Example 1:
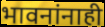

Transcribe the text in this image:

भावनांनाही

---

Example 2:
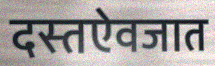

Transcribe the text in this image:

दस्तऐवजात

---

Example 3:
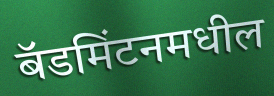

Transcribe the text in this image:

बॅडमिंटनमधील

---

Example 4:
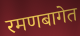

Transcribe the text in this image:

रमणबागेत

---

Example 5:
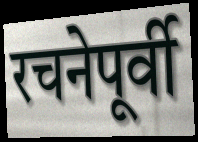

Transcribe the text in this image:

रचनेपूर्वी